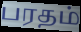
பரதம்